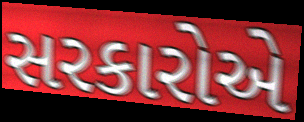
સરકારોએ